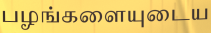
பழங்களையுடைய